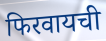
फिरवायची